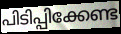
പിടിപ്പിക്കേണ്ട